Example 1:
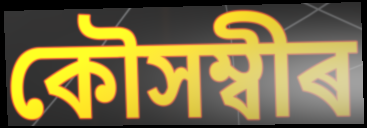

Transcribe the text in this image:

কৌসম্বীৰ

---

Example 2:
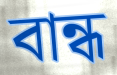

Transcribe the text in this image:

বান্ধ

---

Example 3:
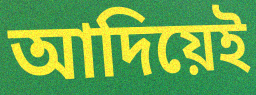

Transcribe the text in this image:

আদিয়েই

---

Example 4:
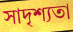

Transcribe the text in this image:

সাদৃশ্যতা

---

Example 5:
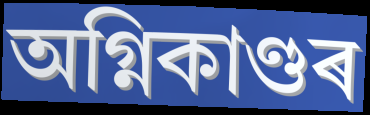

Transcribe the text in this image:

অগ্নিকাণ্ডৰ